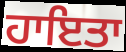
ਹਾਇਤਾ